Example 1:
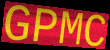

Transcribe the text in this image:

GPMC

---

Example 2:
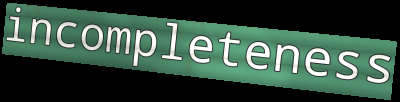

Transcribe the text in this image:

incompleteness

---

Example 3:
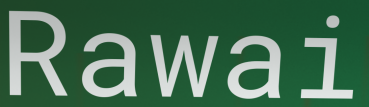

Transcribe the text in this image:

Rawai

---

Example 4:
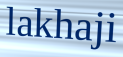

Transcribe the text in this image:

lakhaji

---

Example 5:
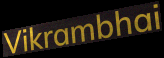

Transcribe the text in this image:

Vikrambhai